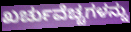
ಖರ್ಚುವೆಚ್ಚಗಳನ್ನು